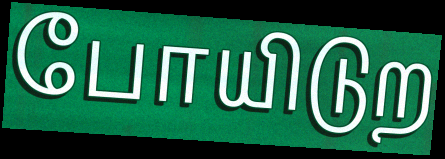
போயிடுற